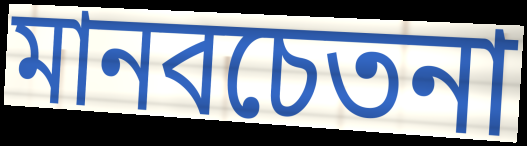
মানবচেতনা